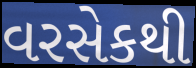
વરસેકથી